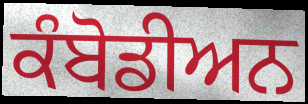
ਕੰਬੋਡੀਅਨ